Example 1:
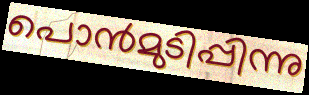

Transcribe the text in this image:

പൊൻമുടിപ്പിന്നു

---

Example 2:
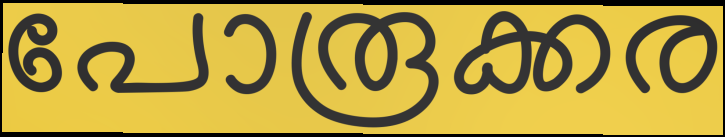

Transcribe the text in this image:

പോരൂക്കര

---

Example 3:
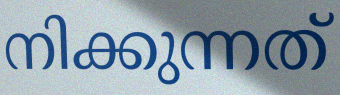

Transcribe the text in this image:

നിക്കുന്നത്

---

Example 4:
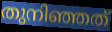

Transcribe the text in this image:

തുനിഞ്ഞത്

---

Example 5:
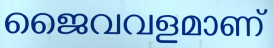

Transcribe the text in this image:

ജൈവവളമാണ്